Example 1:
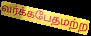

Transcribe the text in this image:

வர்க்கபேதமற்ற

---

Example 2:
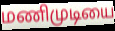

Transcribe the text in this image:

மணிமுடியை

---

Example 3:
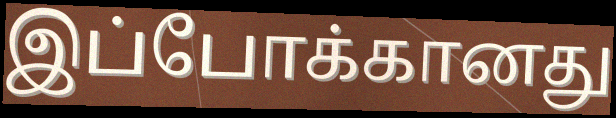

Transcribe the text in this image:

இப்போக்கானது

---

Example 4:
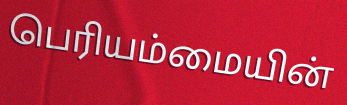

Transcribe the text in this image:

பெரியம்மையின்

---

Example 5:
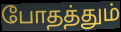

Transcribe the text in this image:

போதத்தும்